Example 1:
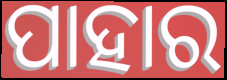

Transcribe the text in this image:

ପାହାର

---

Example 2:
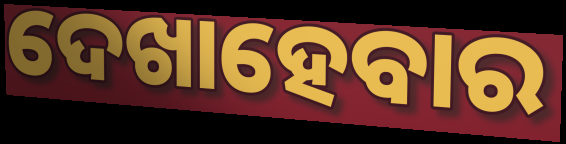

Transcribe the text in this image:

ଦେଖାହେବାର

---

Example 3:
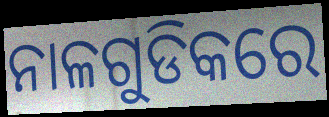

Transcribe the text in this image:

ନାଳଗୁଡିକରେ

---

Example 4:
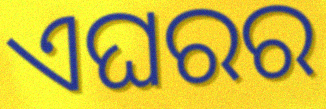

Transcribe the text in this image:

ଏଘରର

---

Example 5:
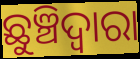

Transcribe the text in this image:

ଛୁଞ୍ଚିଦ୍ଵାରା